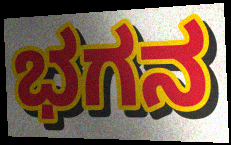
ಭಗನ